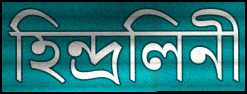
হিন্দ্রলিনী